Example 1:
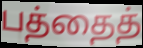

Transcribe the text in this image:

பத்தைத்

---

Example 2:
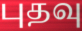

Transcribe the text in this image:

புதவு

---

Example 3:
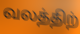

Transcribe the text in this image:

வலத்திற்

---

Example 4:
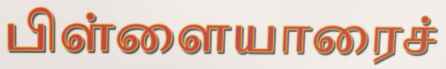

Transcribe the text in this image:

பிள்ளையாரைச்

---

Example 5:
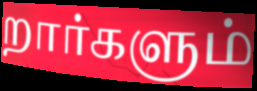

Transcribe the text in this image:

றார்களும்